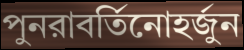
পুনরাবর্তিনোহর্জুন